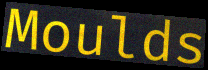
Moulds